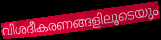
വിശദീകരണങ്ങളിലൂടെയും